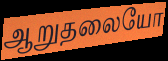
ஆறுதலையோ